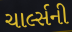
ચાર્લ્સની